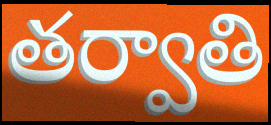
తర్వాతి